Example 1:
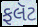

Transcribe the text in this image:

ફલૅટ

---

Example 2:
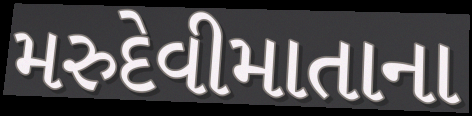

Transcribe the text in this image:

મરુદેવીમાતાના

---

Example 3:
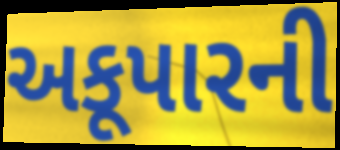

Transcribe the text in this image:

અકૂપારની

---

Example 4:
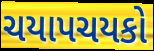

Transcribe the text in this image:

ચયાપચયકો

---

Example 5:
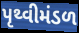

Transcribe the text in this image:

પૃથ્વીમંડળ